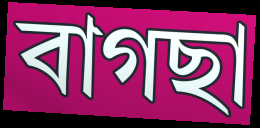
বাগছা